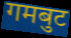
गमबुट